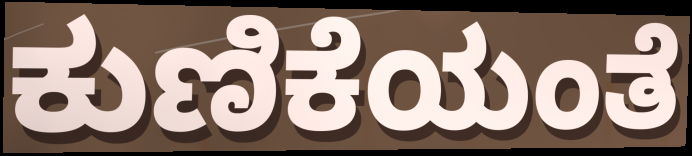
ಕುಣಿಕೆಯಂತೆ